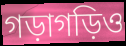
গড়াগড়িও